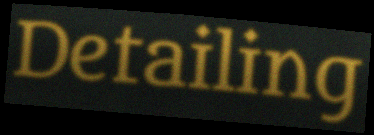
Detailing